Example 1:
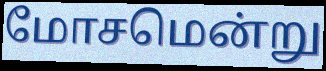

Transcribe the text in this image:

மோசமென்று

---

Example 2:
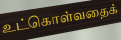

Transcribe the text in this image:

உட்கொள்வதைக்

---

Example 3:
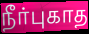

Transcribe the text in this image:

நீர்புகாத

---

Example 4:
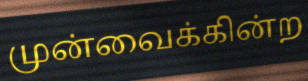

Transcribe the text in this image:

முன்வைக்கின்ற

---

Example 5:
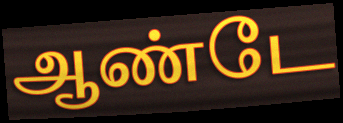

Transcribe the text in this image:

ஆண்டே